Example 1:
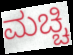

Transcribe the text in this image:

ಮಚ್ಚಿ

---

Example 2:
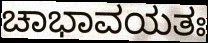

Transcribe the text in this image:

ಚಾಭಾವಯತಃ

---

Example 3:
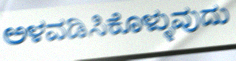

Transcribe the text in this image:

ಅಳವಡಿಸಿಕೊಳ್ಳುವುದು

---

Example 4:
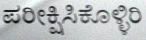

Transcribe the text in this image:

ಪರೀಕ್ಷಿಸಿಕೊಳ್ಳಿರಿ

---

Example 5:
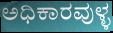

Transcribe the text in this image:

ಅಧಿಕಾರವುಳ್ಳ